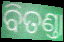
ବିତଣ୍ତା